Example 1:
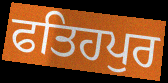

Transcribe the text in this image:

ਫਤਿਹਪੁਰ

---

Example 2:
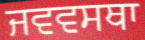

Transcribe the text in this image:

ਜਵਵਸਥਾ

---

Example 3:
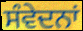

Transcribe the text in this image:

ਸੰਵੇਦਨਾਂ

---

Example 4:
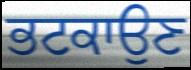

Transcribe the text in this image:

ਭਟਕਾਉਣ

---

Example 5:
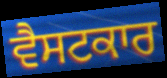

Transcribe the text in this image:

ਵੈਸਟਕਾਰ